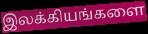
இலக்கியங்களை